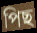
পিছ